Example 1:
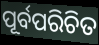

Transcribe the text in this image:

ପୂର୍ବପରିଚିତ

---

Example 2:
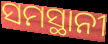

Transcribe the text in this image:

ସମସ୍ଥାନୀ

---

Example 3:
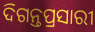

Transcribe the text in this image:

ଦିଗନ୍ତପ୍ରସାରୀ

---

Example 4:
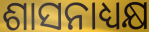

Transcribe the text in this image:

ଶାସନାଧ୍ୟକ୍ଷ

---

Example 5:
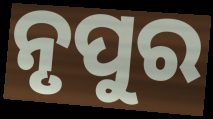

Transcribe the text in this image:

ନୃପୁର